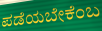
ಪಡೆಯಬೇಕೆಂಬ